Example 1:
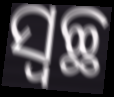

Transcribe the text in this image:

ସ୍ଵଚ୍ଛ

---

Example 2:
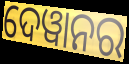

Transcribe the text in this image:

ଦେୱାନର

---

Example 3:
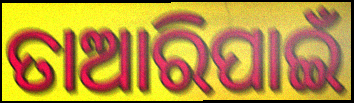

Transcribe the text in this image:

ତାଆରିପାଇଁ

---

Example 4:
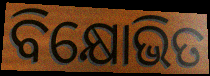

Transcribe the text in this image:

ବିକ୍ଷୋଭିତ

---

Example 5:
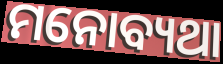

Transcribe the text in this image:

ମନୋବ୍ୟଥା